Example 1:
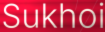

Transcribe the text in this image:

Sukhoi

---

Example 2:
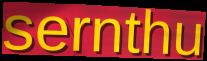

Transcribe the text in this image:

sernthu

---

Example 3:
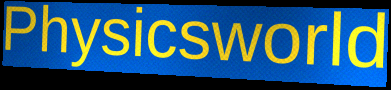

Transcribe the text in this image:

Physicsworld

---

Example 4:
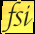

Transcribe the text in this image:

fsi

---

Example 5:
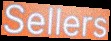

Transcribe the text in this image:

Sellers